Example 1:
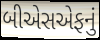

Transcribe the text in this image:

બીએસએફનું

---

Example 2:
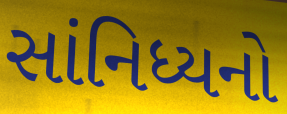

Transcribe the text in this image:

સાંનિધ્યનો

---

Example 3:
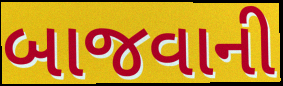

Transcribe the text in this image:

બાજવાની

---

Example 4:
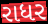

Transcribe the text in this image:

રાધર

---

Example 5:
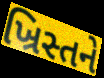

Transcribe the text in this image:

ખ્રિસ્તને